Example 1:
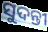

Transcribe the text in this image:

ସୁଦନ୍ତୀ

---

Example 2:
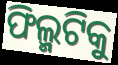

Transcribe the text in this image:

ଫିଲ୍ମଟିକୁ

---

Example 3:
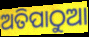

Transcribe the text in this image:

ଅତିପାଠୁଆ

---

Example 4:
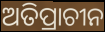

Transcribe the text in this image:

ଅତିପ୍ରାଚୀନ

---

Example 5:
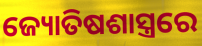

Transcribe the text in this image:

ଜ୍ୟୋତିଷଶାସ୍ତ୍ରରେ